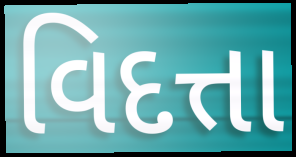
વિદત્તા